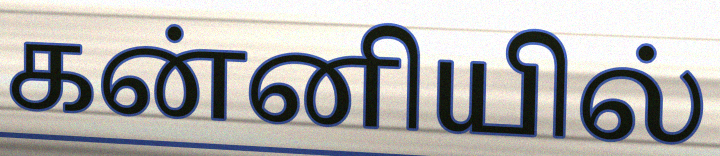
கன்னியில்